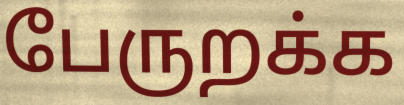
பேருறக்க